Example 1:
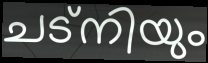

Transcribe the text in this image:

ചട്നിയും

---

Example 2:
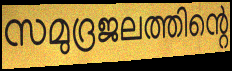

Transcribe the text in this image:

സമുദ്രജലത്തിന്റെ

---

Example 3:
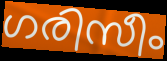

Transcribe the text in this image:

ഗരിസീം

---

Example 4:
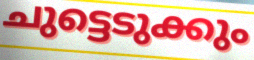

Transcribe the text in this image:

ചുട്ടെടുക്കും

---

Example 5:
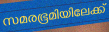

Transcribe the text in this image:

സമരഭൂമിയിലേക്ക്